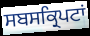
ਸਬਸਕ੍ਰਿਪਟਾਂ